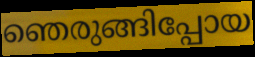
ഞെരുങ്ങിപ്പോയ